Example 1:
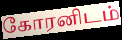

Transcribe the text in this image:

கோரனிடம்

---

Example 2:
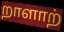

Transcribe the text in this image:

றாளாற்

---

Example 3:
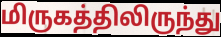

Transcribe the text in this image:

மிருகத்திலிருந்து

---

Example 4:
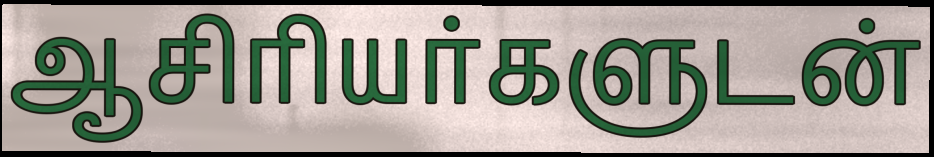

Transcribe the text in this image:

ஆசிரியர்களுடன்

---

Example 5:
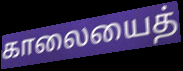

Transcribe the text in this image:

காலையைத்